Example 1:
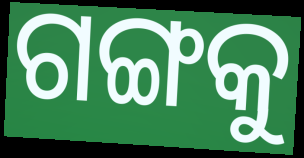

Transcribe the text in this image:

ଗଙ୍ଗକୁ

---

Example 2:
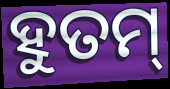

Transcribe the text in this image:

ହୁତମ୍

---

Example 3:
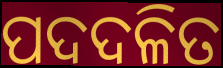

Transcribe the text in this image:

ପଦଦଳିତ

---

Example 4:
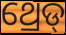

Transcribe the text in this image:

ଥ୍ରେଡ୍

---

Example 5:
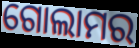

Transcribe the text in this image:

ଗୋଲାମର